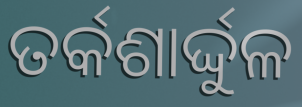
ତର୍କଶାର୍ଦ୍ଦୁଳ